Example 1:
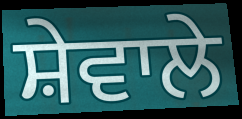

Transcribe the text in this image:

ਸ਼ੇਵਾਲੇ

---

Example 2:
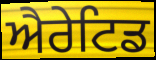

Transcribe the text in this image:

ਐਰੇਟਿਡ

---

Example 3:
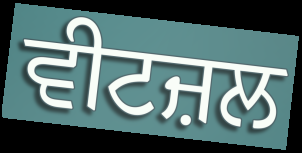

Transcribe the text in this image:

ਵੀਟਜ਼ਲ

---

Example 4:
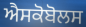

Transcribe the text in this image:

ਐਸਕੋਬੋਲਸ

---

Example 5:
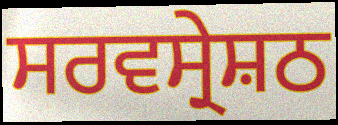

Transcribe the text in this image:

ਸਰਵਸ੍ਰੇਸ਼ਠ